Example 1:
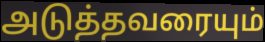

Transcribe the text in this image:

அடுத்தவரையும்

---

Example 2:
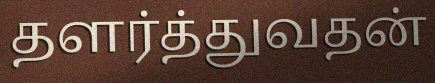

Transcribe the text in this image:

தளர்த்துவதன்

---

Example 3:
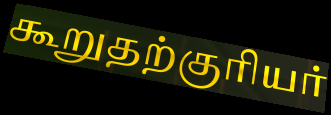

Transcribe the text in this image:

கூறுதற்குரியர்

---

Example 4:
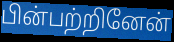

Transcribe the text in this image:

பின்பற்றினேன்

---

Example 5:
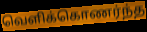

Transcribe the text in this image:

வெளிக்கொணர்ந்த